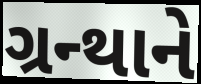
ગ્રન્થાને